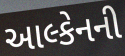
આલ્કેનની